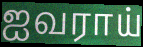
ஐவராய்